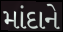
માંદાને